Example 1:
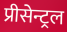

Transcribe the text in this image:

प्रीसेन्ट्रल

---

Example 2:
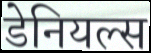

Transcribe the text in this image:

डेनियल्स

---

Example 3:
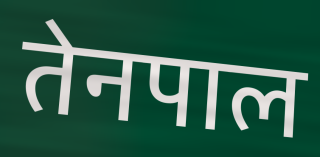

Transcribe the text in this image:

तेनपाल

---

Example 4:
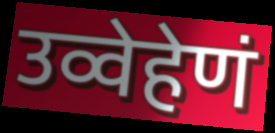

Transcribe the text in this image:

उव्वेहेणं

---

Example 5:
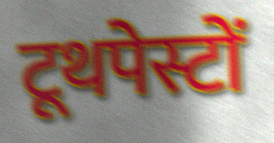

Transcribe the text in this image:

टूथपेस्टों